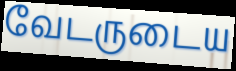
வேடருடைய